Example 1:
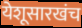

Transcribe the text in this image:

येशूसारखंच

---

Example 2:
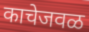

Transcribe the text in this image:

काचेजवळ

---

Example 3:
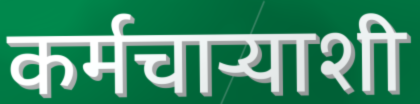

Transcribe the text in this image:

कर्मचाऱ्याशी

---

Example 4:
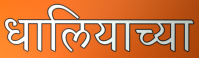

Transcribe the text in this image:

धालियाच्या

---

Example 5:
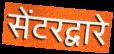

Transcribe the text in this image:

सेंटरद्वारे